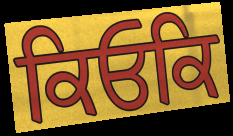
ਕਿਓਕਿ